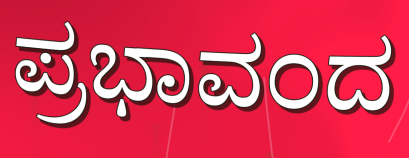
ಪ್ರಭಾವಂದ